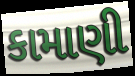
કામાણી